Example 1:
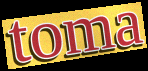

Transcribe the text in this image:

toma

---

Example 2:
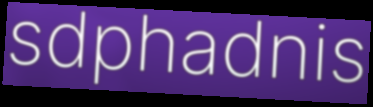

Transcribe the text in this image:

sdphadnis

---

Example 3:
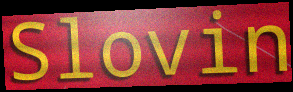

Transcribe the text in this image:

Slovin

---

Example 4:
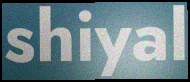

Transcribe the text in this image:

shiyal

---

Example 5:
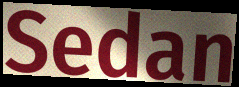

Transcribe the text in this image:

Sedan